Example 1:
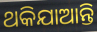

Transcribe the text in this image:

ଥକିଯାଆନ୍ତି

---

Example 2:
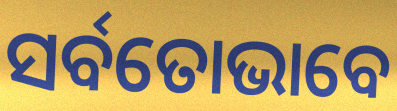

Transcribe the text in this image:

ସର୍ବତୋଭାବେ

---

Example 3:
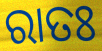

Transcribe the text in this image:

ରାତଃ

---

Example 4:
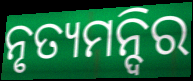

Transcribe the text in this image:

ନୃତ୍ୟମନ୍ଦିର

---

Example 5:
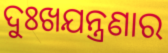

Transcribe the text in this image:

ଦୁଃଖଯନ୍ତ୍ରଣାର